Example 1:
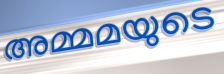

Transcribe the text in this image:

അമ്മമയുടെ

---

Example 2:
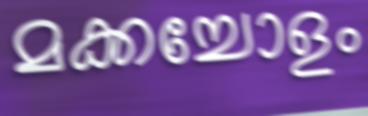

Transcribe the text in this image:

മക്കച്ചോളം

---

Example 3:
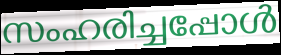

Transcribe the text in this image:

സംഹരിച്ചപ്പോൾ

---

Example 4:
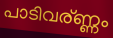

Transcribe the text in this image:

പാടിവര്ണ്ണം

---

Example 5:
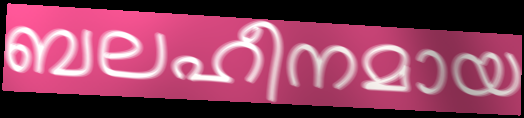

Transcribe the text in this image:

ബലഹീനമായ